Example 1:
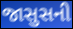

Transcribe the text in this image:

જાસુસની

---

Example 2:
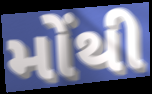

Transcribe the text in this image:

મોંથી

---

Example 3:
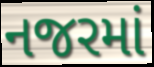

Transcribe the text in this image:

નજરમાં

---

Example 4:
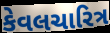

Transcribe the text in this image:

કેવલચારિત્ર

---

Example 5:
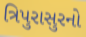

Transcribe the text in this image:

ત્રિપુરાસુરનો